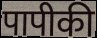
पापीकी